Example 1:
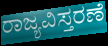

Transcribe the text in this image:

ರಾಜ್ಯವಿಸ್ತರಣೆ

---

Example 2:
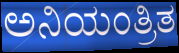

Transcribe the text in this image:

ಅನಿಯಂತ್ರಿತ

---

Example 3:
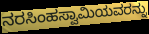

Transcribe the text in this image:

ನರಸಿಂಹಸ್ವಾಮಿಯವರನ್ನು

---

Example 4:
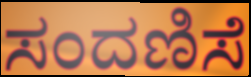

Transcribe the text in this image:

ಸಂದಣಿಸೆ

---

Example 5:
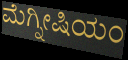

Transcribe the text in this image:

ಮೆಗ್ನೀಷಿಯಂ